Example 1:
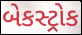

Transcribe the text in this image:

બેકસ્ટ્રોક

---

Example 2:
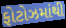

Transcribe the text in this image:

ફોટોઝમાંથી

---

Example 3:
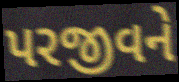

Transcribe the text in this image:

પરજીવને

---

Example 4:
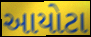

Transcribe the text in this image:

આયોટા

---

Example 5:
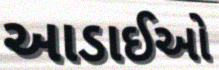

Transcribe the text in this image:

આડાઈઓ